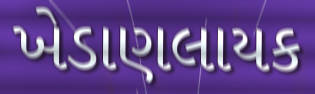
ખેડાણલાયક